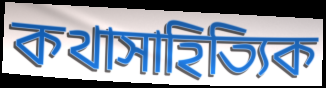
কথাসাহিত্যিক